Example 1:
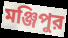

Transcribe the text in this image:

মঞ্জিপুর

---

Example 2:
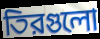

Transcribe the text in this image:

তিরগুলো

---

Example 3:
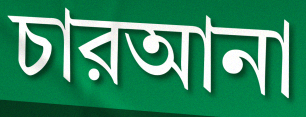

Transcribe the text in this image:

চারআনা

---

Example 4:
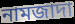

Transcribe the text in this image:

নামজাদা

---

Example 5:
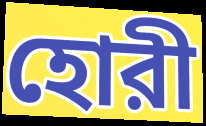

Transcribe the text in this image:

হোরী